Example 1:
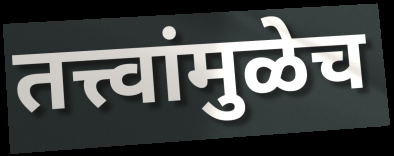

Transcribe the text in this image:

तत्त्वांमुळेच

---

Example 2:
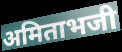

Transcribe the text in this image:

अमिताभजी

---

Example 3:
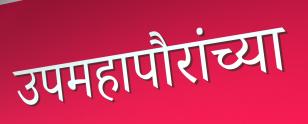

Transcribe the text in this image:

उपमहापौरांच्या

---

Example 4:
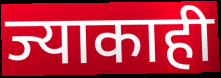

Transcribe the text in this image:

ज्याकाही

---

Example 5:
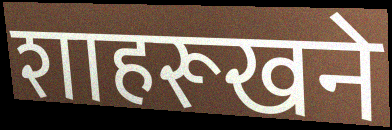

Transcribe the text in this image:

शाहरूखने